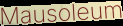
Mausoleum